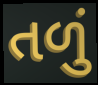
તળું